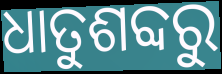
ଧାତୁଶବ୍ଦରୁ